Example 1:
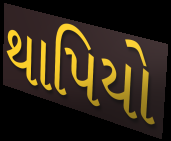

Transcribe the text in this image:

થાપિયો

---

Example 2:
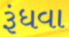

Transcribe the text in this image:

રૂંધવા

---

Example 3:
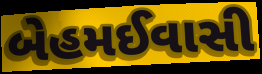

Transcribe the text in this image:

બેહમઈવાસી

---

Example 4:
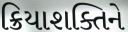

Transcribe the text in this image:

ક્રિયાશક્તિને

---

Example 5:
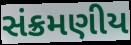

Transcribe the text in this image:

સંક્રમણીય